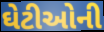
ઘેટીઓની